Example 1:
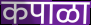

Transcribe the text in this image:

कपाळा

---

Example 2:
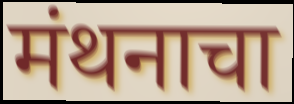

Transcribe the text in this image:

मंथनाचा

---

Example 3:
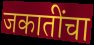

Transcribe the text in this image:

जकातींचा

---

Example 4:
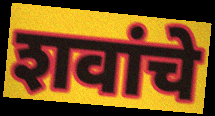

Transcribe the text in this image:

शवांचे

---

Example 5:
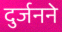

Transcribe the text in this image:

दुर्जनने